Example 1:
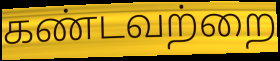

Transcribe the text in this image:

கண்டவற்றை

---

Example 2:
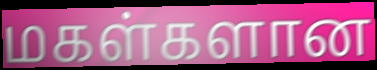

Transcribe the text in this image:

மகள்களான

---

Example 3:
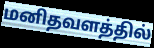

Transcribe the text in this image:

மனிதவளத்தில்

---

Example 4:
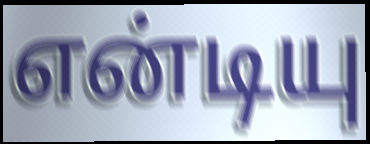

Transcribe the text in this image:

என்டியு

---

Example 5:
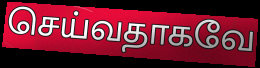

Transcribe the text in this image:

செய்வதாகவே